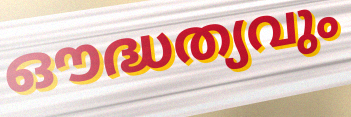
ഔദ്ധത്യവും